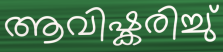
ആവിഷ്കരിച്ചു്